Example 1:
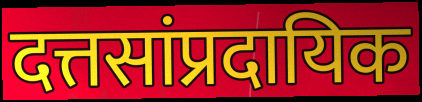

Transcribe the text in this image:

दत्तसांप्रदायिक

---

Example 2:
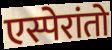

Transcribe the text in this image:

एस्पेरांतो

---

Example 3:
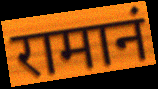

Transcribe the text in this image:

रामानं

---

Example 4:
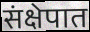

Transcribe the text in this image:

संक्षेपात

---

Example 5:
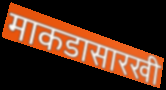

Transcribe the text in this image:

माकडासारखी